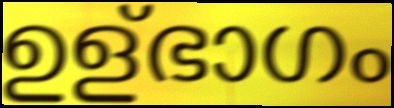
ഉള്ഭാഗം